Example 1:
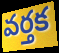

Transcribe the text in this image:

వర్తక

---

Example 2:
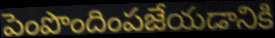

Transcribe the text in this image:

పెంపొందింపజేయడానికి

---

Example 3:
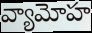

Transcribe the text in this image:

వ్యామోహ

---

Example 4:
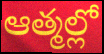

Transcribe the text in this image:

ఆత్మల్లో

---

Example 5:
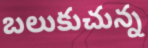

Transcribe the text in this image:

బలుకుచున్న